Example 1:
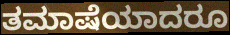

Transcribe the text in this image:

ತಮಾಷೆಯಾದರೂ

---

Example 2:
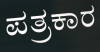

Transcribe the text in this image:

ಪತ್ರಕಾರ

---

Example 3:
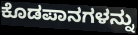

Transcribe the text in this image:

ಕೊಡಪಾನಗಳನ್ನು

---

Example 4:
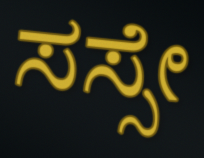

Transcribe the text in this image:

ಸಸ್ಸೇ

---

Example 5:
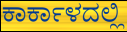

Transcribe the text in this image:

ಕಾರ್ಕಾಳದಲ್ಲಿ